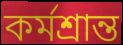
কর্মশ্রান্ত